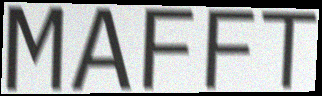
MAFFT